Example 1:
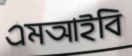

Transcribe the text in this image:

এমআইবি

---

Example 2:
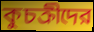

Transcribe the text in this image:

কুচক্রীদের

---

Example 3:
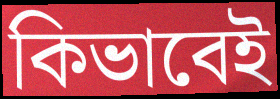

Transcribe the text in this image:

কিভাবেই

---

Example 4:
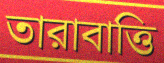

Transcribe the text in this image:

তারাবাত্তি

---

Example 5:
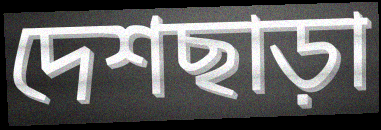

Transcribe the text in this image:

দেশছাড়া